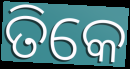
ତିକେ